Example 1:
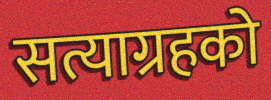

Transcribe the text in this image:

सत्याग्रहको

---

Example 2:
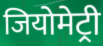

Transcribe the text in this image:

जियोमेट्री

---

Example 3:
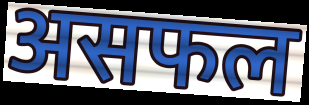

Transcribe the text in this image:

असफल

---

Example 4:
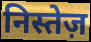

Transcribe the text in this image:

निस्तेज़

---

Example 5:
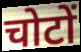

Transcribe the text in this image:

चोटों